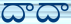
దాదా